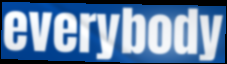
everybody